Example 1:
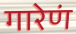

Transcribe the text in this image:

गारेणं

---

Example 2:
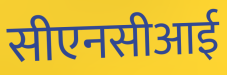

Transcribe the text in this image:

सीएनसीआई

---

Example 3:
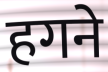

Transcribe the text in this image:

हगने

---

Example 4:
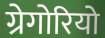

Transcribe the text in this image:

ग्रेगोरियो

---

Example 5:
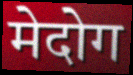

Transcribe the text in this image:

मेदोग